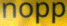
nopp